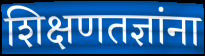
शिक्षणतज्ञांना